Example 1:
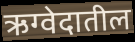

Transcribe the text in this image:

ऋग्वेदातील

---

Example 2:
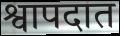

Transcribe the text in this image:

श्वापदात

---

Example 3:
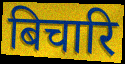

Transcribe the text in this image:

बिचारि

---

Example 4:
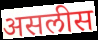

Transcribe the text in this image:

असलीस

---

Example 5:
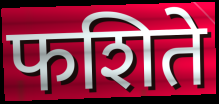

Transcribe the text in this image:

फशिते